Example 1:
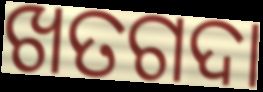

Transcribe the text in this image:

ଖତଗଦା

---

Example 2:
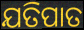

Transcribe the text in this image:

ଯତିପାତ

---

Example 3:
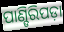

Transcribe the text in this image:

ପାଣ୍ଡିରିପଡ଼ା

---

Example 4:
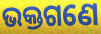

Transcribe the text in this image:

ଭକ୍ତଗଣେ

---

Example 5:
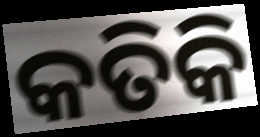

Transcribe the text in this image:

କତିକି